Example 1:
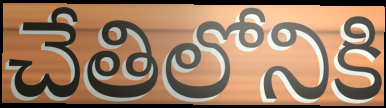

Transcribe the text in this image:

చేతిలోనికి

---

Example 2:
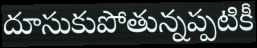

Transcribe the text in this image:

దూసుకుపోతున్నప్పటికీ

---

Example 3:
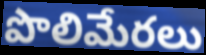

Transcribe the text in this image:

పొలిమేరలు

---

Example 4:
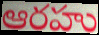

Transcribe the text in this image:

ఆరహు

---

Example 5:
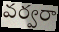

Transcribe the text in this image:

వర్వరా